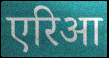
एरिआ